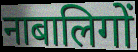
नाबालिगों